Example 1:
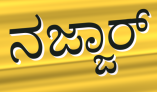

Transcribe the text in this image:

ನಜ್ಜಾರ್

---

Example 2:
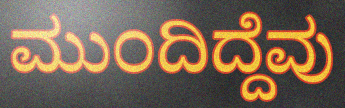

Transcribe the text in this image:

ಮುಂದಿದ್ದೆವು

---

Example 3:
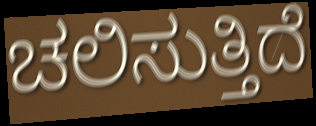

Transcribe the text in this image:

ಚಲಿಸುತ್ತಿದೆ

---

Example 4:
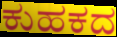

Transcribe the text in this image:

ಕುಹಕದ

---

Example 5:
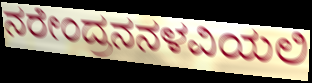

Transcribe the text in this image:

ನರೇಂದ್ರನನಳವಿಯಲಿ